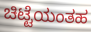
ಚಿಟ್ಟೆಯಂತಹ